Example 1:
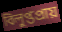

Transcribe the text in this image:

বিলুপ্তপ্ৰায়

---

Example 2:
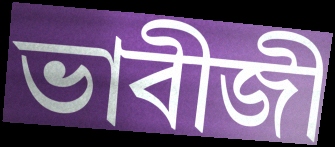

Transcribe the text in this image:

ভাবীজী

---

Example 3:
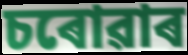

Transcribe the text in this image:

চৰোৱাৰ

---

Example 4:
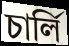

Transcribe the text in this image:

চাৰ্লি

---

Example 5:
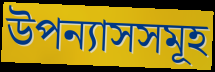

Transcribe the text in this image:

উপন্যাসসমূহ